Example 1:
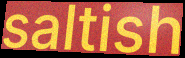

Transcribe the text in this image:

saltish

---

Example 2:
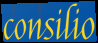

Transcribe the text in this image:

consilio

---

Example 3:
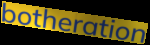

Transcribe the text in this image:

botheration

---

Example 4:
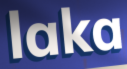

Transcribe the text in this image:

laka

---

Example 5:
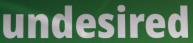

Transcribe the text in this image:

undesired